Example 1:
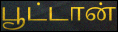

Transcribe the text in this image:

பூட்டான்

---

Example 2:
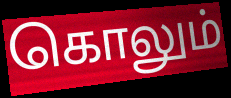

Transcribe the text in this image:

கொலும்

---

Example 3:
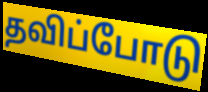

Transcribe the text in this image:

தவிப்போடு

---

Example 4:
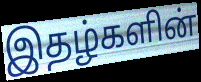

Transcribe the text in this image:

இதழ்களின்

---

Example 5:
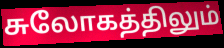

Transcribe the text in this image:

சுலோகத்திலும்